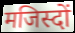
मजिस्दों